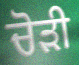
ਚੋੜੀ